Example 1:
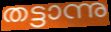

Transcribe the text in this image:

തട്ടാന്നു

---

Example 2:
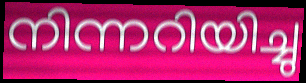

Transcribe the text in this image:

നിന്നറിയിച്ചു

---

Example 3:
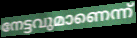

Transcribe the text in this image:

നേട്ടവുമാണെന്ന്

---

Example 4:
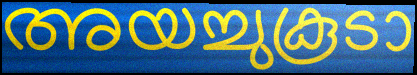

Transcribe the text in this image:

അയച്ചുകൂടാ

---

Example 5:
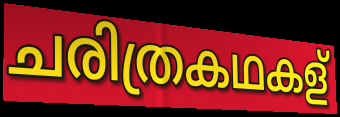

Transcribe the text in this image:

ചരിത്രകഥകള്